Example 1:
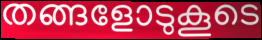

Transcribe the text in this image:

തങ്ങളോടുകൂടെ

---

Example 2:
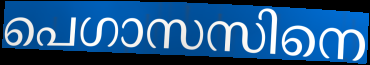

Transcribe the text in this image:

പെഗാസസിനെ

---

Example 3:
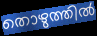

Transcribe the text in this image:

തൊഴുത്തിൽ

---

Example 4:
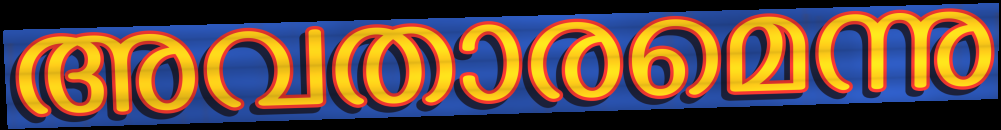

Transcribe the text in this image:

അവതാരമെന്നു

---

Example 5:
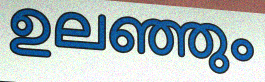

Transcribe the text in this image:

ഉലഞ്ഞും